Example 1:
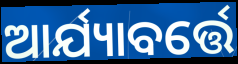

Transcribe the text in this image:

ଆର୍ଯ୍ୟାବର୍ତ୍ତେ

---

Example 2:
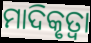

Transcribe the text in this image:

ମାଦିକୃତ୍ୱା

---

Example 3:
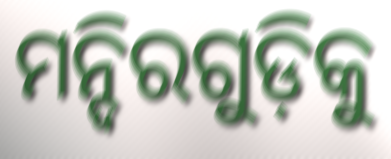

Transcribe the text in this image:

ମନ୍ଦିରଗୁଡ଼ିକୁ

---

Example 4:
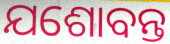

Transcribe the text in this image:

ଯଶୋବନ୍ତ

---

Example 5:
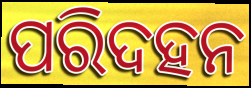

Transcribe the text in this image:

ପରିଦହନ